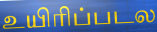
உயிரிப்படல